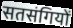
सतसंगियों